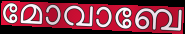
മോവാബേ